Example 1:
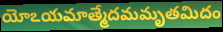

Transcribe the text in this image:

యోఽయమాత్మేదమమృతమిదం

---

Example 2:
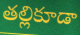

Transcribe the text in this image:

తల్లికూడా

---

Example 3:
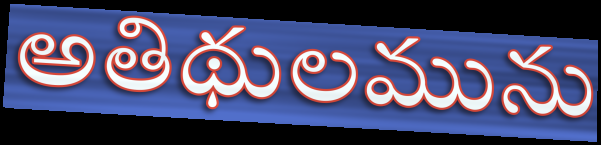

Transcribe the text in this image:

అతిథులమును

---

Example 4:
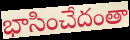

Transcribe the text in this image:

భాసించేదంతా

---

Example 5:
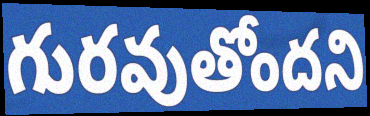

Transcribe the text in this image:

గురవుతోందని